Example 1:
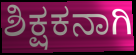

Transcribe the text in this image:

ಶಿಕ್ಷಕನಾಗಿ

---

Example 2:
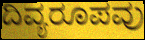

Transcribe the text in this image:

ದಿವ್ಯರೂಪವು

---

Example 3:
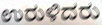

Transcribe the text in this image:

ಉರುಳಿದರು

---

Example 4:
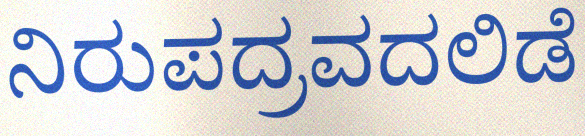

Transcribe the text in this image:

ನಿರುಪದ್ರವದಲಿಡೆ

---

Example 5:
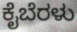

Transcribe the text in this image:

ಕೈಬೆರಳು